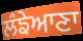
ਲੰਙੇਆਣਾ